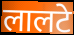
लालटे